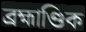
ব্ৰহ্মাণ্ডিক